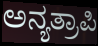
ಅನ್ಯತ್ರಾಪಿ